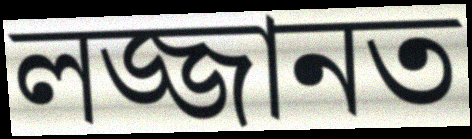
লজ্জানত